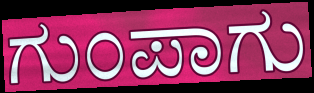
ಗುಂಪಾಗು